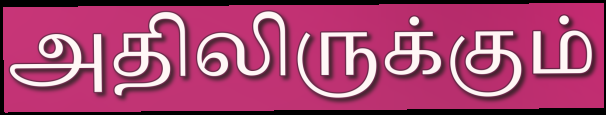
அதிலிருக்கும்